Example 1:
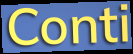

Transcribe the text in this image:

Conti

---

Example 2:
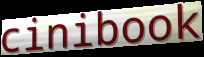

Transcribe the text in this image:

cinibook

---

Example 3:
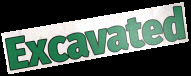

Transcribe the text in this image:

Excavated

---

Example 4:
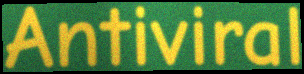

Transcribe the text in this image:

Antiviral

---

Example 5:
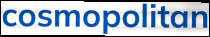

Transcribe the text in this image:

cosmopolitan